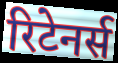
रिटेनर्स